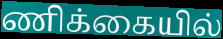
ணிக்கையில்